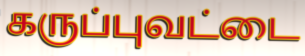
கருப்புவட்டை